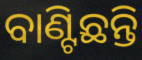
ବାଣ୍ଟିଛନ୍ତି